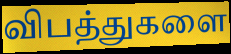
விபத்துகளை